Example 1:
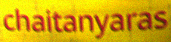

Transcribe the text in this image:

chaitanyaras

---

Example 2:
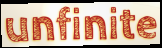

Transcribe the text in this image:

unfinite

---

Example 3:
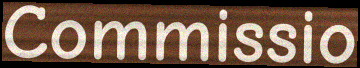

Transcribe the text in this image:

Commissio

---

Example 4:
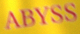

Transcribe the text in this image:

ABYSS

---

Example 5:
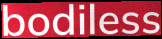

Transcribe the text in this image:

bodiless